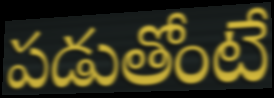
పడుతోంటే